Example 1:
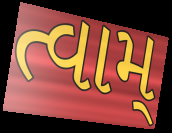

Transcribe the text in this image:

ત્વામ્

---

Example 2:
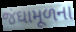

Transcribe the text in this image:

જંઘામૂળના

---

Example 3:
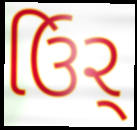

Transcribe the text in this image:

ઉિર્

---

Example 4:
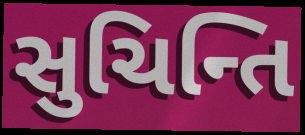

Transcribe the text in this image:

સુચિન્તિ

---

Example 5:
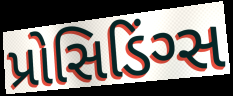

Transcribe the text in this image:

પ્રોસિડિંગ્સ